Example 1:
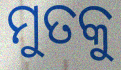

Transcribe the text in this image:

ମୁତକୁ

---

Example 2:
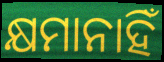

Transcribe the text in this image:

କ୍ଷମାନାହିଁ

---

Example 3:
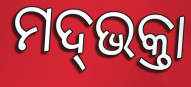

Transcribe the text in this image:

ମଦ୍‌ଭକ୍ତା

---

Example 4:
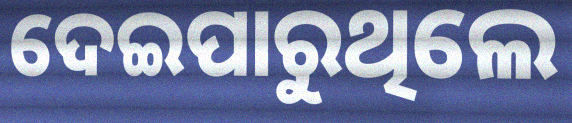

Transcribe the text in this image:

ଦେଇପାରୁଥିଲେ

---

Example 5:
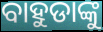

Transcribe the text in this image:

ବାହୁଡାଙ୍କୁ